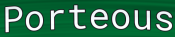
Porteous